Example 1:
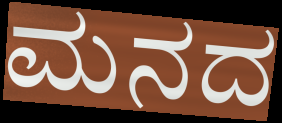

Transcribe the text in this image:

ಮನದ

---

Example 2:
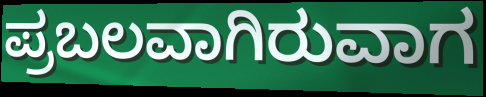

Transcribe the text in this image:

ಪ್ರಬಲವಾಗಿರುವಾಗ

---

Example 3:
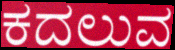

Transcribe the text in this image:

ಕದಲುವ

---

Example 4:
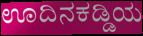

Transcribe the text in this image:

ಊದಿನಕಡ್ಡಿಯ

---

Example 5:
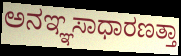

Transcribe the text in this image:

ಅನಞ್ಞಸಾಧಾರಣತ್ತಾ